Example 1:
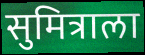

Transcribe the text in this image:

सुमित्राला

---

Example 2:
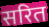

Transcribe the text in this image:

सरित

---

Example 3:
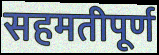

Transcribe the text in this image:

सहमतीपूर्ण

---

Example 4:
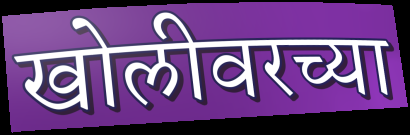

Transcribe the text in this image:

खोलीवरच्या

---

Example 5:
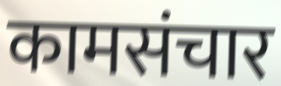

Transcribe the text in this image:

कामसंचार